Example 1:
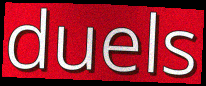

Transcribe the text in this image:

duels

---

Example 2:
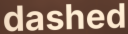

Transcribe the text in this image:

dashed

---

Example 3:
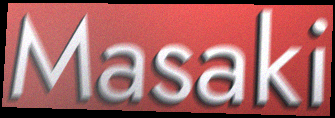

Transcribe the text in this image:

Masaki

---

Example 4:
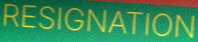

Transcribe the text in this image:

RESIGNATION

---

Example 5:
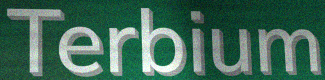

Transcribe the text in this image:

Terbium